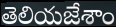
తెలియజేశాం